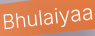
Bhulaiyaa